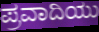
ಪ್ರವಾದಿಯು